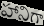
హానిగా